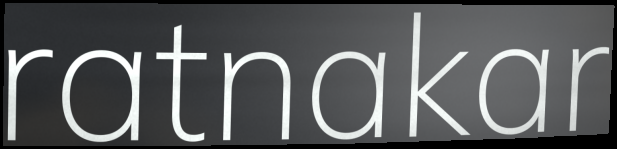
ratnakar